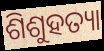
ଶିଶୁହତ୍ୟା